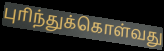
புரிந்துக்கொள்வது